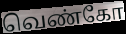
வெண்கோ